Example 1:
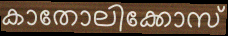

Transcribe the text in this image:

കാതോലിക്കോസ്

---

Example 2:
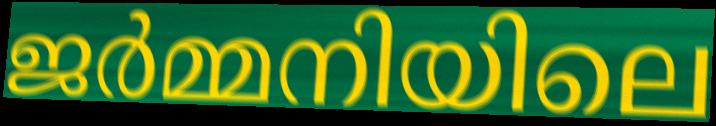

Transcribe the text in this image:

ജർമ്മനിയിലെ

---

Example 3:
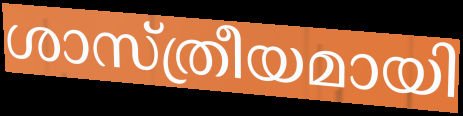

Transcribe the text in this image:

ശാസ്ത്രീയമായി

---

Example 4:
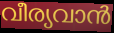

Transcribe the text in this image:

വീര്യവാൻ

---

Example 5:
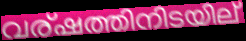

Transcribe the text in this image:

വര്ഷത്തിനിടയില്